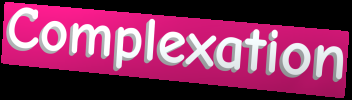
Complexation